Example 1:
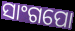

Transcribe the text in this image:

ସାଂଗପୋ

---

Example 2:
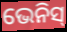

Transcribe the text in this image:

ଭେନିସ୍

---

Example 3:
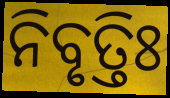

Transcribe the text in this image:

ନିବୃତ୍ତିଃ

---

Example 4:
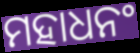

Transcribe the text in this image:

ମହାଧନଂ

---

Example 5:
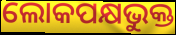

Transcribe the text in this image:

ଲୋକପକ୍ଷଭୁକ୍ତ